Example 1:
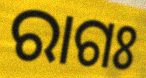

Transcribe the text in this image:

ରାଗଃ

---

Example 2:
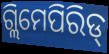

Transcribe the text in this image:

ଗ୍ଲିମେପିରିଡ୍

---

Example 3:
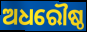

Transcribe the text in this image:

ଅଧରୌଷ୍ଠ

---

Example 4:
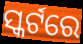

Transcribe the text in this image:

ସ୍କର୍ଟରେ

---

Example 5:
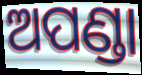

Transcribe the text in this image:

ଅପଣ୍ଡା